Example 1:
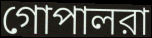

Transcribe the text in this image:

গোপালরা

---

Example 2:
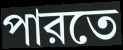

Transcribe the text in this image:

পারতে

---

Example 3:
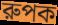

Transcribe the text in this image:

রুপক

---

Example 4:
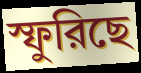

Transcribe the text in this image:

স্ফুরিছে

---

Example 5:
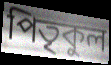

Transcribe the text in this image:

পিতৃকুল